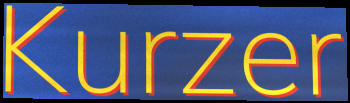
Kurzer